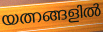
യത്നങ്ങളിൽ